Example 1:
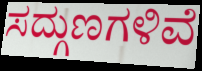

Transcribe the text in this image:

ಸದ್ಗುಣಗಳಿವೆ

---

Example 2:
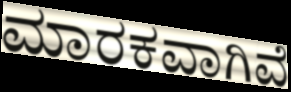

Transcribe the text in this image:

ಮಾರಕವಾಗಿವೆ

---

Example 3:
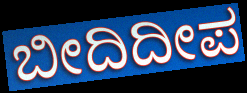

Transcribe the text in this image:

ಬೀದಿದೀಪ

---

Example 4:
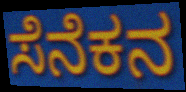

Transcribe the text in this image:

ಸೆನೆಕನ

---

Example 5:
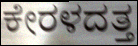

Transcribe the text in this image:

ಕೇರಳದತ್ತ